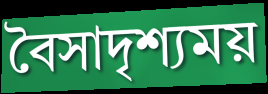
বৈসাদৃশ্যময়